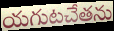
యగుటచేతను